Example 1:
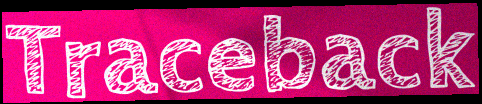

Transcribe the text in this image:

Traceback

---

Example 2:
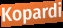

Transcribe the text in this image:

Kopardi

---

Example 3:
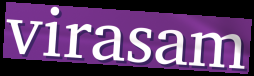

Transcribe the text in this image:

virasam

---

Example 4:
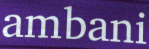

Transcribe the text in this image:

ambani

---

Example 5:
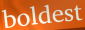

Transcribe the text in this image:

boldest